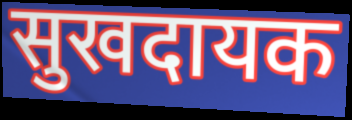
सुखदायक